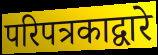
परिपत्रकाद्वारे